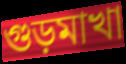
গুড়মাখা